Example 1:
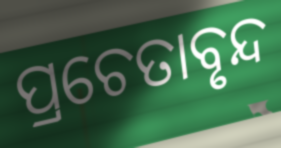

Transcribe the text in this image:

ପ୍ରଚେତାବୃନ୍ଦ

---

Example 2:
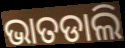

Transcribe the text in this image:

ଭାତଡାଲି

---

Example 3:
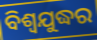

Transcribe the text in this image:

ବିଶ୍ବଯୁଦ୍ଧର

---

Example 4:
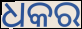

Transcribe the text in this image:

ଧକର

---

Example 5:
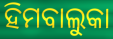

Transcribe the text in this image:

ହିମବାଲୁକା